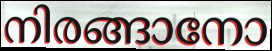
നിരങ്ങാനോ